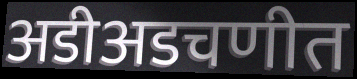
अडीअडचणीत